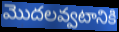
మొదలవ్వటానికి